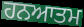
ਹਨਆਤਮ